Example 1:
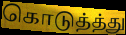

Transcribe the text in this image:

கொடுத்த்து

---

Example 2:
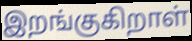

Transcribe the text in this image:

இறங்குகிறாள்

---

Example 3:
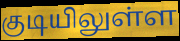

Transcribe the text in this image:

குடியிலுள்ள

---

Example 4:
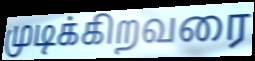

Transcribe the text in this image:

முடிக்கிறவரை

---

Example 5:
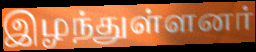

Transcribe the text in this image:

இழந்துள்ளனர்